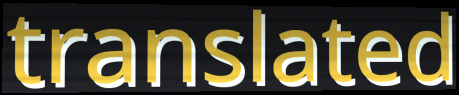
translated